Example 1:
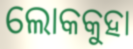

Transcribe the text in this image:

ଲୋକକୁହା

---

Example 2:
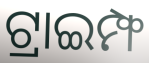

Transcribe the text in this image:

ଟ୍ରାଇମ୍ଫ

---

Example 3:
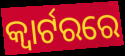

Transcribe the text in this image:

କ୍ୱାର୍ଟରରେ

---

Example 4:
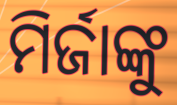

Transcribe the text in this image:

ମିର୍ଜାଙ୍କୁ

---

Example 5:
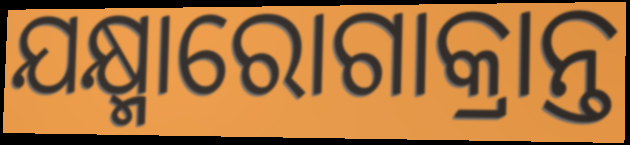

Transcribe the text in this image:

ଯକ୍ଷ୍ମାରୋଗାକ୍ରାନ୍ତ